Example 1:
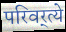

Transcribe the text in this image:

परिवर्त्ये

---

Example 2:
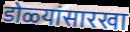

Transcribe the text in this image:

डोळ्यांसारखा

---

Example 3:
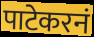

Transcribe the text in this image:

पाटेकरनं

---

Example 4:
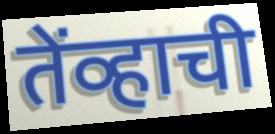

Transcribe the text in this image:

तेंव्हाची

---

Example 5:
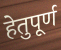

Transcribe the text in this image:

हेतुपूर्ण